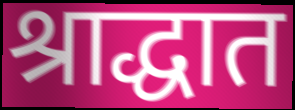
श्राद्धात